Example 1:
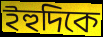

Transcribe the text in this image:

ইহুদিকে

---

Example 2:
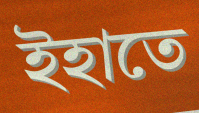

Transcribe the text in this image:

ইহাতে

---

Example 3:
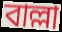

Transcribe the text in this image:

বাল্লা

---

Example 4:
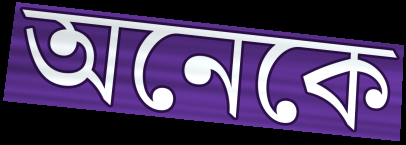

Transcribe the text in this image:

অনেকে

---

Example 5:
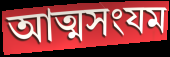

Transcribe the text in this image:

আত্মসংযম